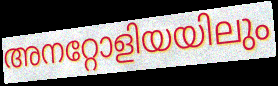
അനറ്റോളിയയിലും